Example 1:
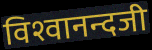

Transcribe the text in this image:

विश्वानन्दजी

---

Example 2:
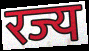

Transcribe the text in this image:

रज्य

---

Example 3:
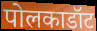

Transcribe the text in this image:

पोलकाडॉट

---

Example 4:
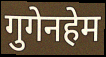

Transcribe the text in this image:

गुगेनहेम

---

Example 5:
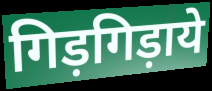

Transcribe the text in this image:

गिड़गिड़ाये